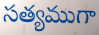
సత్యముగా